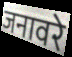
जनावरे